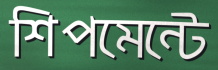
শিপমেন্টে